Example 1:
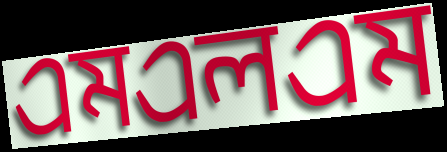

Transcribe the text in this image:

এমএলএম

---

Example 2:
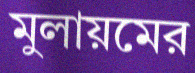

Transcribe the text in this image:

মুলায়মের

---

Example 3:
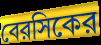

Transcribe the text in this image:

বেরসিকের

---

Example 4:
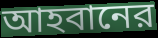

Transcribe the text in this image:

আহবানের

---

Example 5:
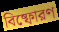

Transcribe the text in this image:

বিষ্ফোরণ